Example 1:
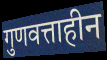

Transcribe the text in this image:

गुणवत्ताहीन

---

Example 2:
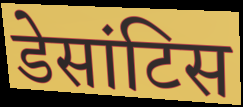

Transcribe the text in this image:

डेसांटिस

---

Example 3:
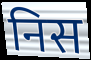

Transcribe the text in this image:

निस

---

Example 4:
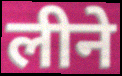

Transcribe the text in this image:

लीने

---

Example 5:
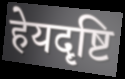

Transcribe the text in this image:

हेयदृष्टि